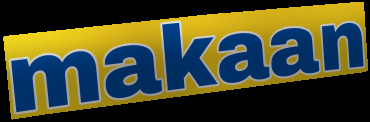
makaan